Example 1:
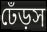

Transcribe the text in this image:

ঢেঁড়স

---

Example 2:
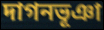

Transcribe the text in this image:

দাগনভূঞা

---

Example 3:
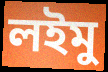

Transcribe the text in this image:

লইমু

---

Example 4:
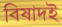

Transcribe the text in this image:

বিষাদই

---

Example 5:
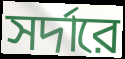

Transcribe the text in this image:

সর্দারে